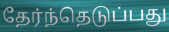
தேர்ந்தெடுப்பது